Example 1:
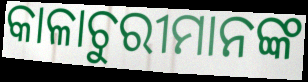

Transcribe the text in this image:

କାଳାଚୁରୀମାନଙ୍କ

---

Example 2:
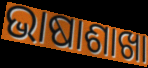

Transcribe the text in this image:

ଭାଷାଶାଖା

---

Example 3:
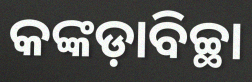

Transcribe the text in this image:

କଙ୍କଡ଼ାବିଚ୍ଛା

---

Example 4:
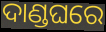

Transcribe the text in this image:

ଦାଣ୍ଡଘରେ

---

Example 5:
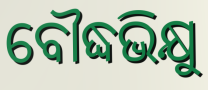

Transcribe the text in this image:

ବୌଦ୍ଧଭିକ୍ଷୁ